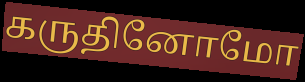
கருதினோமோ